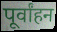
पूर्वांहन